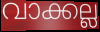
വാക്കല്ല